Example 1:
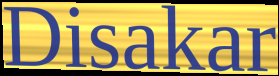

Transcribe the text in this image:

Disakar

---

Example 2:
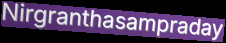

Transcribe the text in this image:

Nirgranthasampraday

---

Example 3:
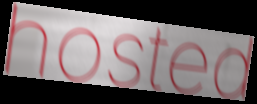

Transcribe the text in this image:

hosted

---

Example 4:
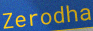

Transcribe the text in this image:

Zerodha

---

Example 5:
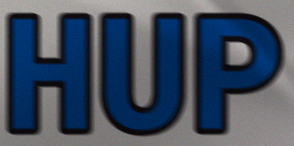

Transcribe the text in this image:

HUP